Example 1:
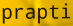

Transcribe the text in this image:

prapti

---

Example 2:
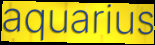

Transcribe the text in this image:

aquarius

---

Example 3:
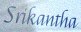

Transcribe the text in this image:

Srikantha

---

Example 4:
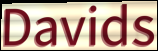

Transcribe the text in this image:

Davids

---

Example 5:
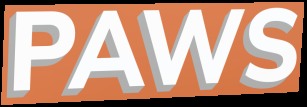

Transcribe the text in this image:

PAWS